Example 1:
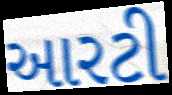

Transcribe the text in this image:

આરટી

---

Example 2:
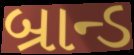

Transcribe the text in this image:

બ્રાન્ડ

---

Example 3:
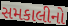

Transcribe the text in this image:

સમકાલીનો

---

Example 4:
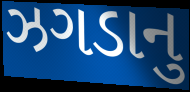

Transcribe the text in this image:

ઝગડાનુ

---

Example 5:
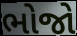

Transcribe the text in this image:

ભોજો